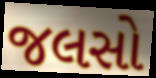
જલસો